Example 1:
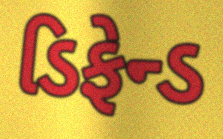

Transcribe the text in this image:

ડિફેન્ડ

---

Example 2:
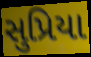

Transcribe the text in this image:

સુપ્રિયા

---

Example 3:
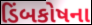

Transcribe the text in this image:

ડિંબકોષના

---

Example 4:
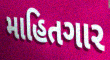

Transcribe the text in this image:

માહિતગાર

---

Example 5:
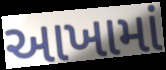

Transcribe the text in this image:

આખામાં